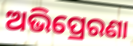
ଅଭିପ୍ରେରଣା